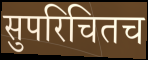
सुपरिचितच